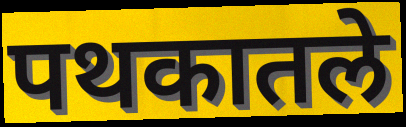
पथकातले